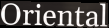
Oriental